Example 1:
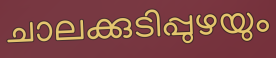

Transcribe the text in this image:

ചാലക്കുടിപ്പുഴയും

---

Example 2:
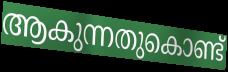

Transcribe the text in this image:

ആകുന്നതുകൊണ്ട്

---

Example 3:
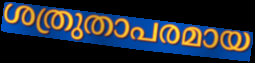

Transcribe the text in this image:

ശത്രുതാപരമായ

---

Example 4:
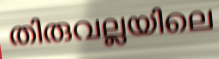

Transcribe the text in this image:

തിരുവല്ലയിലെ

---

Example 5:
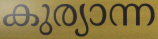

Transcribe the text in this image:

കുര്യാന്ന